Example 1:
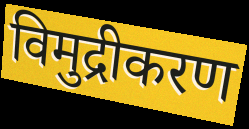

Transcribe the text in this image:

विमुद्रीकरण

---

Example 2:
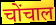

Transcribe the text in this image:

चोंचाल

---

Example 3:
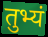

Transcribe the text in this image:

तुभ्यं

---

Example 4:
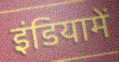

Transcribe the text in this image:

इंडियामें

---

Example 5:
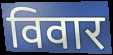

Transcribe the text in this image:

विवार